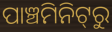
ପାଞ୍ଚମିନିଟ୍‌ରୁ